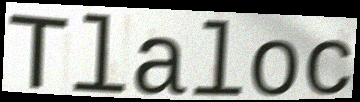
Tlaloc